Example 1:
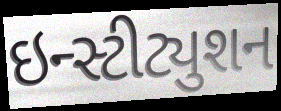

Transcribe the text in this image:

ઇન્સ્ટીટ્યુશન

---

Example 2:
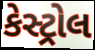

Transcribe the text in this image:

કેસ્ટ્રોલ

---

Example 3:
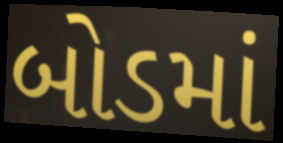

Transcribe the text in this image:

બોડમાં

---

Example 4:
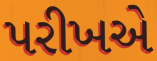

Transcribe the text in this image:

પરીખએ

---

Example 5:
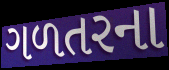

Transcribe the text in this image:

ગળતરના